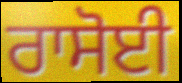
ਰਾਸੋਈ